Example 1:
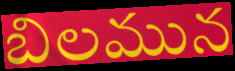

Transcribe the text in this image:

బిలమున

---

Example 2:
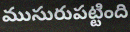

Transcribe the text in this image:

ముసురుపట్టింది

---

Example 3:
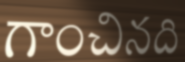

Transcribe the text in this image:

గాంచినది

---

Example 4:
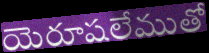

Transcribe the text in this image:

యెరూషలేముతో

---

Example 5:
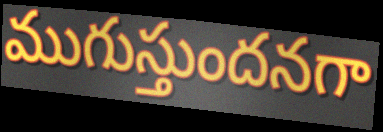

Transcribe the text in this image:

ముగుస్తుందనగా